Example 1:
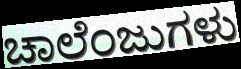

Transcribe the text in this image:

ಚಾಲೆಂಜುಗಳು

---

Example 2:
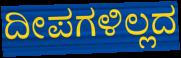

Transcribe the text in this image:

ದೀಪಗಳಿಲ್ಲದ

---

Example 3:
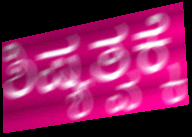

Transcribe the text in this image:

ಶಿಷ್ಯತ್ವಕ್ಕೆ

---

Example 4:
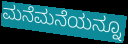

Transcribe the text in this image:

ಮನೆಮನೆಯನ್ನೂ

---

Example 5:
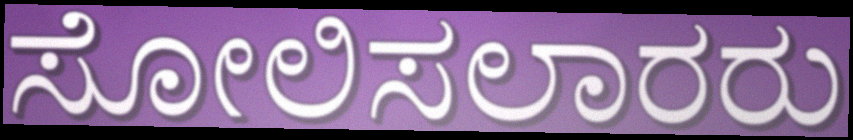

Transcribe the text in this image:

ಸೋಲಿಸಲಾರರು